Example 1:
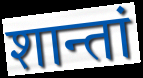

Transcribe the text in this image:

शान्तां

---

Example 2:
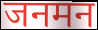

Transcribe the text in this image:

जनमन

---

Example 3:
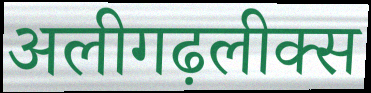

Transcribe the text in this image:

अलीगढ़लीक्स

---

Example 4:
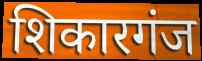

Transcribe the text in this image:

शिकारगंज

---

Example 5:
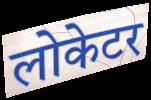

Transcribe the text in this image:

लोकेटर